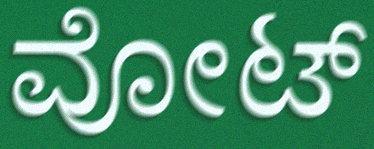
ವೋಟ್